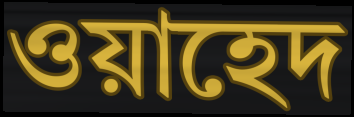
ওয়াহেদ